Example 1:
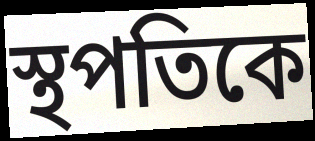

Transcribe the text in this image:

স্থপতিকে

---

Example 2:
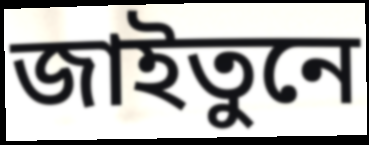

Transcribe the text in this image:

জাইতুনে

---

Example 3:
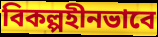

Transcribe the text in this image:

বিকল্পহীনভাবে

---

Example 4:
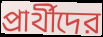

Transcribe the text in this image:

প্রার্থীদের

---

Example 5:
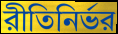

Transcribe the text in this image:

রীতিনির্ভর